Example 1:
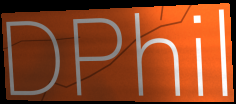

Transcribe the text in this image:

DPhil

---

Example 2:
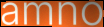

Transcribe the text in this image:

amno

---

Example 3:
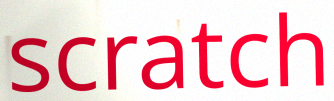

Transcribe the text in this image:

scratch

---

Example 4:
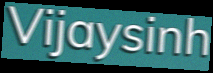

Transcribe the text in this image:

Vijaysinh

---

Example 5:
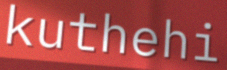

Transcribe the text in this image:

kuthehi